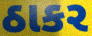
ઠાકર